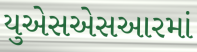
યુએસએસઆરમાં